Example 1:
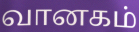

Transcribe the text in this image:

வானகம்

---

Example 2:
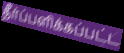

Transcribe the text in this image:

தீர்ப்பளிக்கப்பட்ட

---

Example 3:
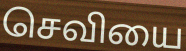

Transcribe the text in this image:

செவியை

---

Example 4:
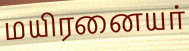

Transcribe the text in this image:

மயிரனையர்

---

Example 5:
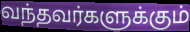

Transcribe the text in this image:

வந்தவர்களுக்கும்